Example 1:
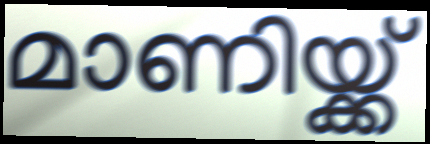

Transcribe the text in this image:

മാണിയ്ക്ക്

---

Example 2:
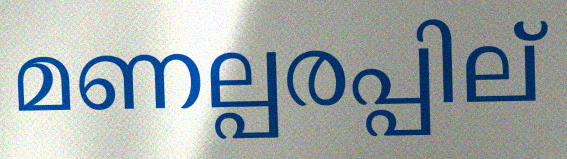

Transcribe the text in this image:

മണല്പരപ്പില്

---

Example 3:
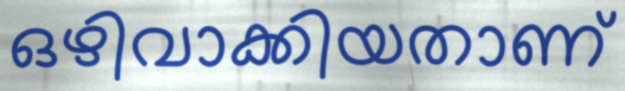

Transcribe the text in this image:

ഒഴിവാക്കിയതാണ്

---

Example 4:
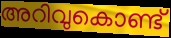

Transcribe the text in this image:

അറിവുകൊണ്ട്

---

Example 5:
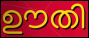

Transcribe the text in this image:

ഊതി